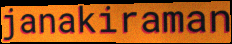
janakiraman